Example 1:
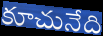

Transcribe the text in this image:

కూచునేది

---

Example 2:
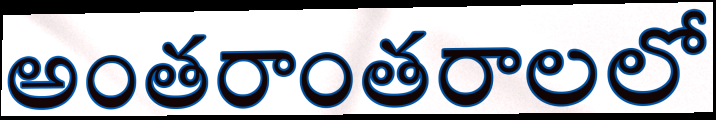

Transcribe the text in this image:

అంతరాంతరాలలో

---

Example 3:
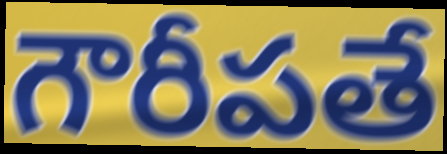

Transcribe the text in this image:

గౌరీపతే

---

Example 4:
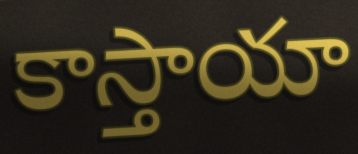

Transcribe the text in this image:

కాస్తాయా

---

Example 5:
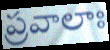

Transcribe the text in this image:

ప్రవాలాః